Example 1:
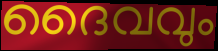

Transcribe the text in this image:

ദൈവവും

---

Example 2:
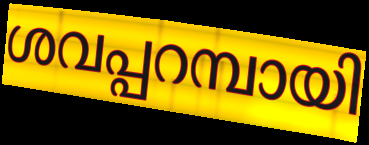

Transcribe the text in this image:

ശവപ്പറമ്പായി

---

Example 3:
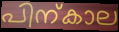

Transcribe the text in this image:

പിന്കാല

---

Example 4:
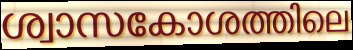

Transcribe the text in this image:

ശ്വാസകോശത്തിലെ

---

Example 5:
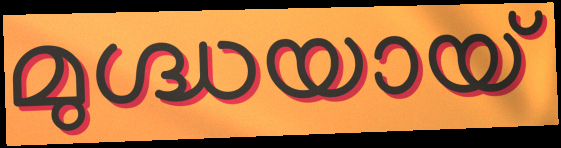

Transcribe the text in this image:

മുഗ്ദ്ധയായ്